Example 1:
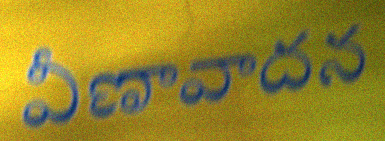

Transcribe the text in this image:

వీణావాదన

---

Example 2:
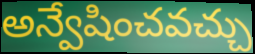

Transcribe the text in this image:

అన్వేషించవచ్చు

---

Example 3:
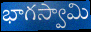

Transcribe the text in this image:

భాగస్వామి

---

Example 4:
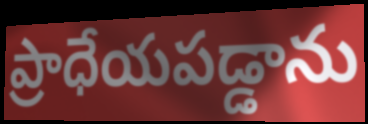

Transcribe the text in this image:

ప్రాధేయపడ్డాను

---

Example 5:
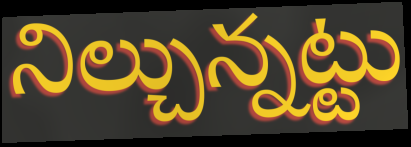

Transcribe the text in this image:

నిల్చున్నట్టు